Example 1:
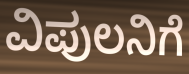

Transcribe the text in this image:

ವಿಪುಲನಿಗೆ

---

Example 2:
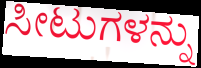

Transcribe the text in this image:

ಸೀಟುಗಳನ್ನು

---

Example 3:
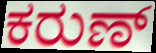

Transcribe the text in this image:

ಕರುಣ್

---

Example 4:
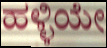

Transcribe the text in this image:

ಹಳ್ಳಿಯೇ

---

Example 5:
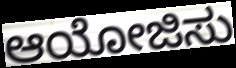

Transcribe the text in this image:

ಆಯೋಜಿಸು